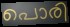
പൊരി